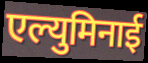
एल्युमिनाई